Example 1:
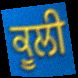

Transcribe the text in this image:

ਕੂਲੀ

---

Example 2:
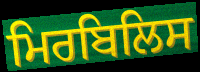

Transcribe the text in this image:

ਮਿਰਬਿਲਿਸ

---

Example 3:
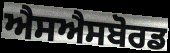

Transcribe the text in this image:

ਐਸਐਸਬੋਰਡ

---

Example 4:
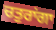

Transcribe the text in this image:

ਚਤੁਰਾਂਗਾ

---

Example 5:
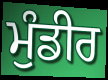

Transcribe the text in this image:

ਮੁੰਡੀਰ